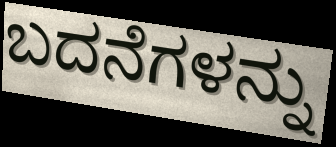
ಬದನೆಗಳನ್ನು